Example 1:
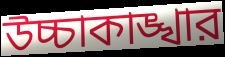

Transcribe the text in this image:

উচ্চাকাঙ্খার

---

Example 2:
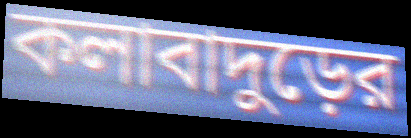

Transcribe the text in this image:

কলাবাদুড়ের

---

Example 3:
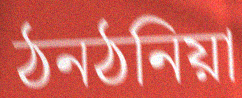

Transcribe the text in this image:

ঠনঠনিয়া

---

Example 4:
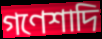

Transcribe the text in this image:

গণেশাদি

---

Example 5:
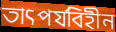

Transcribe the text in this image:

তাৎপর্যবিহীন